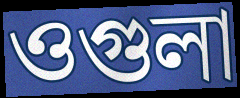
ওগুলা